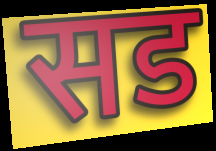
सड